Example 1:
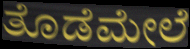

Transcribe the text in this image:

ತೊಡೆಮೇಲೆ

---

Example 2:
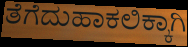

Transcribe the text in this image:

ತೆಗೆದುಹಾಕಲಿಕ್ಕಾಗಿ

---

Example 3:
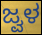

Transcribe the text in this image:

ಜ್ವಳ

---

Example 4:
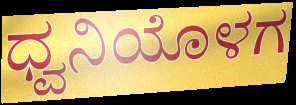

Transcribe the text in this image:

ಧ್ವನಿಯೊಳಗ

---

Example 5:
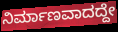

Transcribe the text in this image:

ನಿರ್ಮಾಣವಾದದ್ದೇ